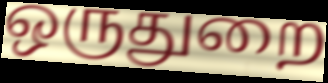
ஒருதுறை